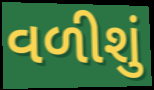
વળીશું